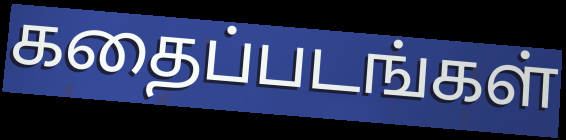
கதைப்படங்கள்